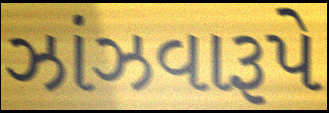
ઝાંઝવારૂપે